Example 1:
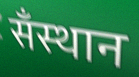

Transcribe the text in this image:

सँस्थान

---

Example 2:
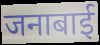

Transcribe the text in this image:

जनाबाई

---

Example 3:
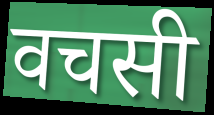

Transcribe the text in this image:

वचसी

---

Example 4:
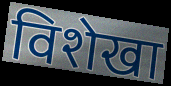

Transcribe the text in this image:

विशेखा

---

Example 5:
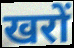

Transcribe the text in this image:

खरों